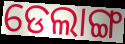
ଡେଲାଙ୍ଗ